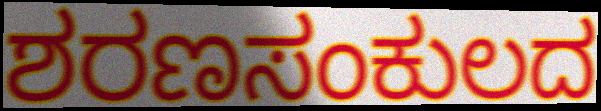
ಶರಣಸಂಕುಲದ